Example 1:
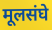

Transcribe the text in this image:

मूलसंघे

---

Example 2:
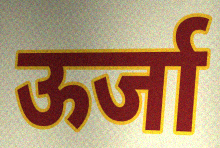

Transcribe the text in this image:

ऊर्जा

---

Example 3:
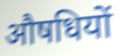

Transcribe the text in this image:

औषधियों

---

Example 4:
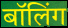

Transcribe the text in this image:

बॉलिंग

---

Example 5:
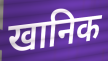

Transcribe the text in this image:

खानिक